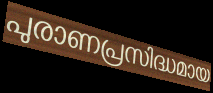
പുരാണപ്രസിദ്ധമായ